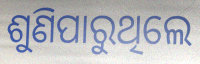
ଶୁଣିପାରୁଥିଲେ